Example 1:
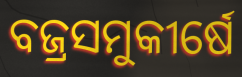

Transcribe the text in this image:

ବଜ୍ରସମୁକୀର୍ଷେ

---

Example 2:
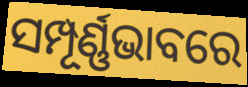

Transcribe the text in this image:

ସମ୍ପୂର୍ଣ୍ଣଭାବରେ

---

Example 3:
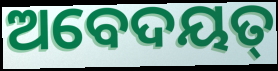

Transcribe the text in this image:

ଅବେଦୟତ୍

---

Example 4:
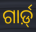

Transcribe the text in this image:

ଗାର୍ଡ଼୍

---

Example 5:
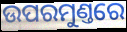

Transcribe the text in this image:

ଉପରମୁଣ୍ତରେ